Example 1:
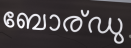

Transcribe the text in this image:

ബോര്ഡു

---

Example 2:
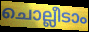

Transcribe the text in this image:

ചൊല്ലീടാം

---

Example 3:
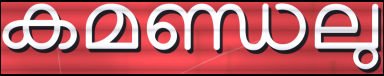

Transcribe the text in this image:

കമണ്ഡലു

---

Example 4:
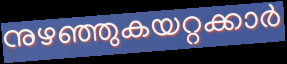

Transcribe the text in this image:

നുഴഞ്ഞുകയറ്റക്കാർ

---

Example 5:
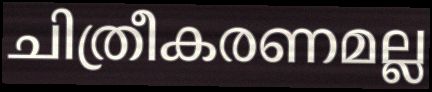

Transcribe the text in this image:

ചിത്രീകരണമല്ല